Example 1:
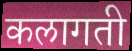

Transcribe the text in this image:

कलागती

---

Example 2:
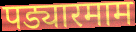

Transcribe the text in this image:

पड्यारमाम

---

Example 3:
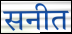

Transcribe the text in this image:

सनीत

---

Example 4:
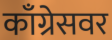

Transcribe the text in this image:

काँग्रेसवर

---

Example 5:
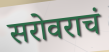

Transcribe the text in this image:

सरोवराचं